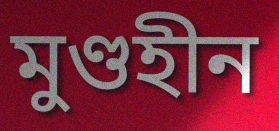
মুণ্ডহীন